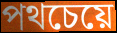
পথচেয়ে